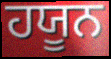
ਹਯੂਨ